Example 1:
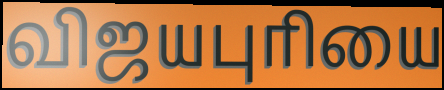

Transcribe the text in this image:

விஜயபுரியை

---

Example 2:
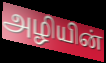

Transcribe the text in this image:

அழியின்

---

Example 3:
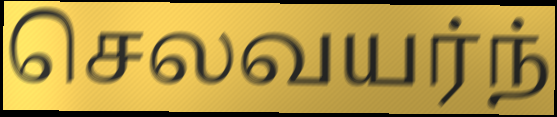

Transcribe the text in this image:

செலவயர்ந்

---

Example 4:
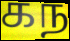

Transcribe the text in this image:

கந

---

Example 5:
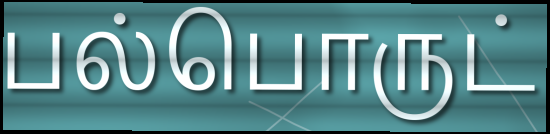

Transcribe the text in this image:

பல்பொருட்